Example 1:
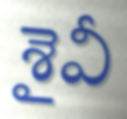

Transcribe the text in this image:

శైవీ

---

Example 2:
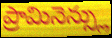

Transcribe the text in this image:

ప్రామినెన్స్లు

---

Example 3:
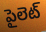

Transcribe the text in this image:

పైలెట్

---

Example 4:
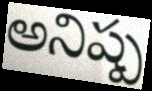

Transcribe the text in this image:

అనిష్ప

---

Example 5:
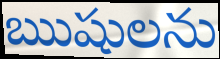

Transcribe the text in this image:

ఋషులను